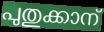
പുതുക്കാന്